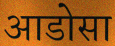
आडोसा